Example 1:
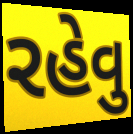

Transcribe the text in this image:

રહેવુ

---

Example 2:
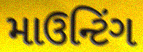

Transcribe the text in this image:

માઉન્ટિંગ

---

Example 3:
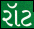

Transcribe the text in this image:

રૉટ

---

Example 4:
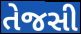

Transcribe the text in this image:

તેજસી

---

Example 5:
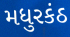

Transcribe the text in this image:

મધુરકંઠ